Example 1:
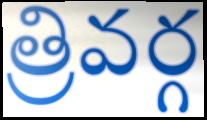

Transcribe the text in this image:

త్రివర్గ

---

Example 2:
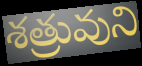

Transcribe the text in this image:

శత్రువుని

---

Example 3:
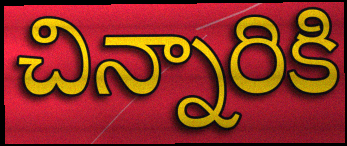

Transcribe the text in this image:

చిన్నారికి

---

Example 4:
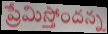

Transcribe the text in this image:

ప్రేమిస్తోందన్న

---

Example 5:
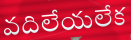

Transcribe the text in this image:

వదిలేయలేక